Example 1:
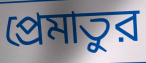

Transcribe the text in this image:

প্রেমাতুর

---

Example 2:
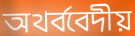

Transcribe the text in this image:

অথর্ববেদীয়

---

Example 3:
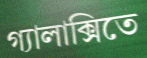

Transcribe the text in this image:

গ্যালাক্সিতে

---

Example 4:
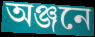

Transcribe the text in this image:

অঞ্জনে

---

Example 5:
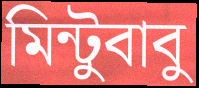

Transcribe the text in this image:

মিন্টুবাবু